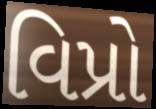
વિપ્રો